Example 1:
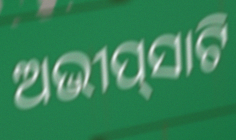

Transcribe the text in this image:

ଅଭୀପ୍‌ସାଟି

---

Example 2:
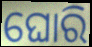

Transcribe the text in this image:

ଘୋରି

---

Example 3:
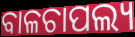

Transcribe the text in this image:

ବାଳଚାପଲ୍ୟ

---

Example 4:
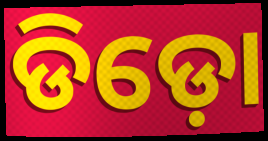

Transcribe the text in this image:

ଡିଡ଼ୋ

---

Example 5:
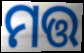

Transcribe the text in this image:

ମତ୍ତ